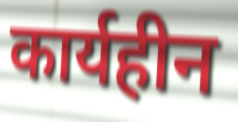
कार्यहीन